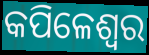
କପିଳେଶ୍ଵର